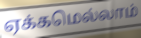
ஏக்கமெல்லாம்